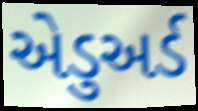
એડુઅર્ડ